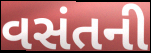
વસંતની